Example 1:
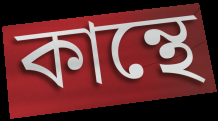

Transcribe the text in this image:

কান্থে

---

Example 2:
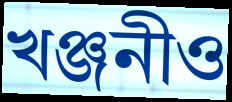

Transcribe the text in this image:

খঞ্জনীও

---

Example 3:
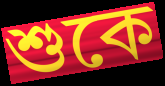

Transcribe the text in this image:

শুকে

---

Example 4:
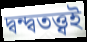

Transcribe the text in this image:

দ্বন্দ্বতত্ত্বই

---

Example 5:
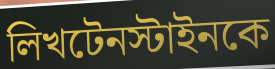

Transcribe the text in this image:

লিখটেনস্টাইনকে